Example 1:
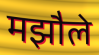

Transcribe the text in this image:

मझौले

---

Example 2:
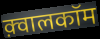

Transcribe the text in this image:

क़्वालकॉम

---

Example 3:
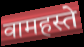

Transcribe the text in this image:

वामहस्ते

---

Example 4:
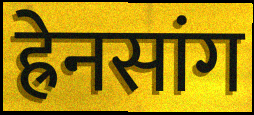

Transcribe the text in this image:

ह्रेनसांग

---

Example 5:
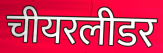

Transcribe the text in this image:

चीयरलीडर